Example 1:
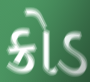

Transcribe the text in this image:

ક્રોડ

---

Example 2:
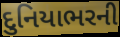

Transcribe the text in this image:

દુનિયાભરની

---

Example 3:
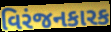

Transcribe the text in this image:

વિરંજનકારક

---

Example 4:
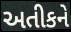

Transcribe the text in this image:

અતીકને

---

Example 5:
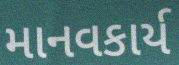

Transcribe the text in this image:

માનવકાર્ય